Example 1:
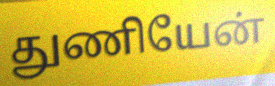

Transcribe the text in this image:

துணியேன்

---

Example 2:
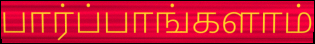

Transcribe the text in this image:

பார்ப்பாங்களாம்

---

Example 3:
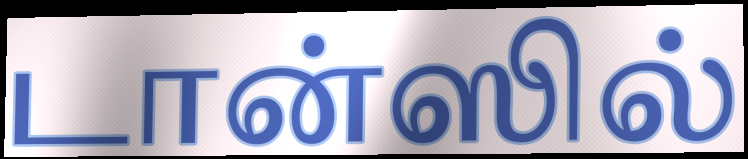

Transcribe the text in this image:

டான்ஸில்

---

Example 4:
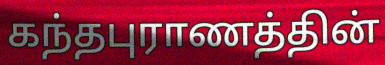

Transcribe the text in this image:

கந்தபுராணத்தின்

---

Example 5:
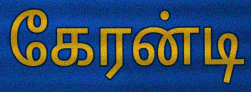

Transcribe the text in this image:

கேரன்டி